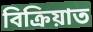
বিক্ৰিয়াত